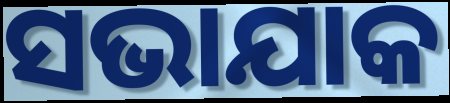
ସଭାଯାକ